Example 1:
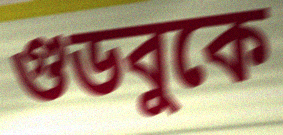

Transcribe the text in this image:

গুডবুকে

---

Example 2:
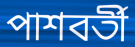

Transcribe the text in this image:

পাশবর্তী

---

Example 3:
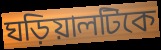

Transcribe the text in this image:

ঘড়িয়ালটিকে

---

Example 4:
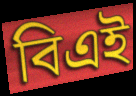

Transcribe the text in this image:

বিএই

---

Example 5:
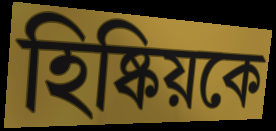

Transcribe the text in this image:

হিষ্কিয়কে